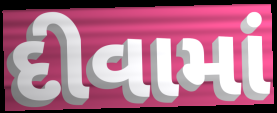
દીવામાં